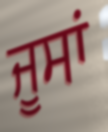
ਜੂਸਾਂ